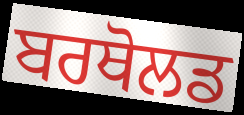
ਬਰਥੋਲਡ